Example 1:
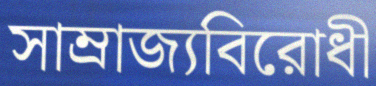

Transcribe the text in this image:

সাম্রাজ্যবিরোধী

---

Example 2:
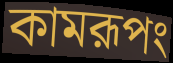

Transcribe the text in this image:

কামরূপং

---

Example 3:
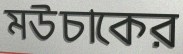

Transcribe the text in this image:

মউচাকের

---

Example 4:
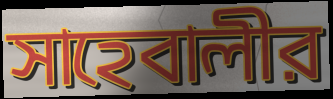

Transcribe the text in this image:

সাহেবালীর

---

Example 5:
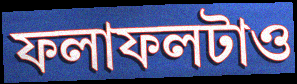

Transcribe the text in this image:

ফলাফলটাও